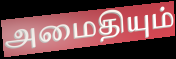
அமைதியும்